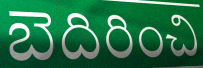
బెదిరించి